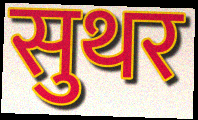
सुथर